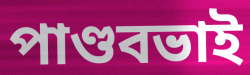
পাণ্ডবভাই